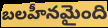
బలహీనమైంది